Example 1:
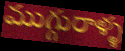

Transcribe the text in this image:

ముగ్గురాళ్ళ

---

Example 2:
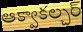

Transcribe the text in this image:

ఆక్వాకల్చర్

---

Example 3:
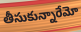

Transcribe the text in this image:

తీసుకున్నారేమో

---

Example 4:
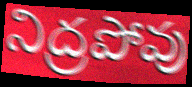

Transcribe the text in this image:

నిద్రపోవు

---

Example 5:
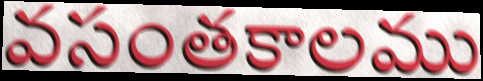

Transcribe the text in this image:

వసంతకాలము